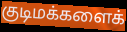
குடிமக்களைக்